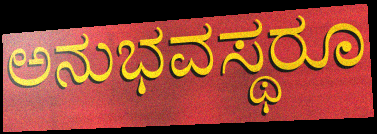
ಅನುಭವಸ್ಥರೂ